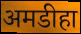
अमडीहा